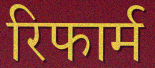
रिफार्म